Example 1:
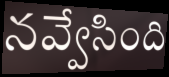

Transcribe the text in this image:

నవ్వేసింది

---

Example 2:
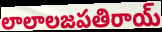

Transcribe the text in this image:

లాలాలజపతిరాయ్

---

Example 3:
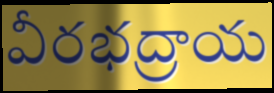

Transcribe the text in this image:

వీరభద్రాయ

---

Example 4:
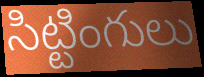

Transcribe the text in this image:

సిట్టింగులు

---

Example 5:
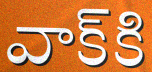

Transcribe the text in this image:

వాక్‌కి